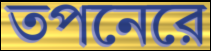
তপনেরে